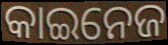
କାଇନେଜ